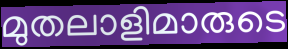
മുതലാളിമാരുടെ